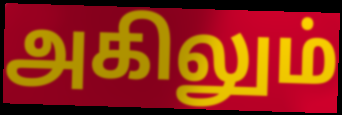
அகிலும்